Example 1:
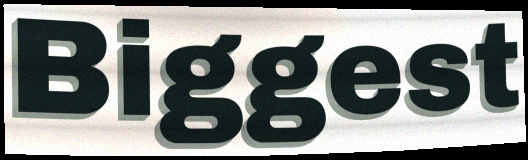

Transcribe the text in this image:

Biggest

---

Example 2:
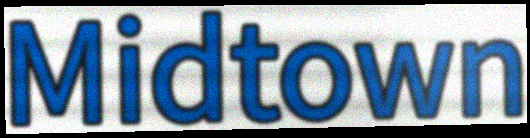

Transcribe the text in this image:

Midtown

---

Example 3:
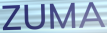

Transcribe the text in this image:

ZUMA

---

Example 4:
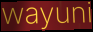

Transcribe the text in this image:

wayuni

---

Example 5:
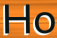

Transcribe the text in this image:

Ho